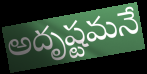
అదృష్టమనే